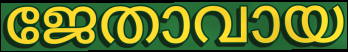
ജേതാവായ